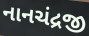
નાનચંદ્રજી